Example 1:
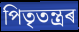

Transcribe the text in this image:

পিতৃতন্ত্ৰৰ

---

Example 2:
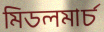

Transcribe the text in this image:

মিডলমাৰ্চ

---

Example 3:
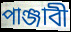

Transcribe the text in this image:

পাঞ্জাবী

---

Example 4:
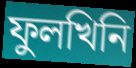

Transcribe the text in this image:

ফুলখিনি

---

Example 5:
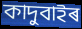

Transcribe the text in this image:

কাদুবাইৰ